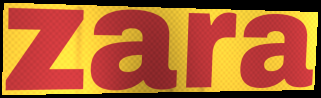
zara